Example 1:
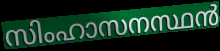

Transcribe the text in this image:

സിംഹാസനസ്ഥൻ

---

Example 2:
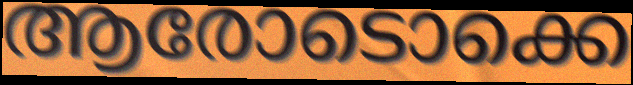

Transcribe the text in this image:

ആരോടൊക്കെ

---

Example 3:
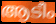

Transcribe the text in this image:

ആടീം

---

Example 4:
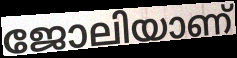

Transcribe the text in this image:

ജോലിയാണ്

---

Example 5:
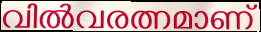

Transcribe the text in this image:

വിൽവരത്നമാണ്